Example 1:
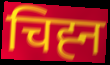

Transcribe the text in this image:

चिह्‍न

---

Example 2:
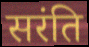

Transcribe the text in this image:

सरंति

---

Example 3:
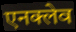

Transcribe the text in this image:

एनक्‍लेव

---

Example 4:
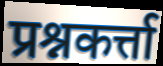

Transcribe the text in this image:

प्रश्नकर्त्ता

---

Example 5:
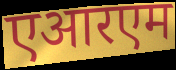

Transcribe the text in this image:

एआरएम